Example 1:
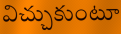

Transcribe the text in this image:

విచ్చుకుంటూ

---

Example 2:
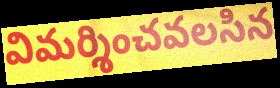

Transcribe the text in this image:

విమర్శించవలసిన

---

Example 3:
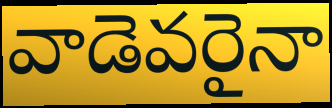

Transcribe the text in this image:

వాడెవరైనా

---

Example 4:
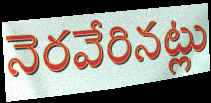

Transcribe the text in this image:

నెరవేరినట్లు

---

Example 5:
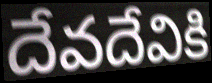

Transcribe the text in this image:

దేవదేవికి